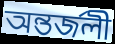
অন্তর্জলী